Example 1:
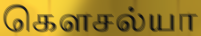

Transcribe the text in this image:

கௌசல்யா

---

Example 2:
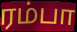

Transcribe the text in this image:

ரம்பா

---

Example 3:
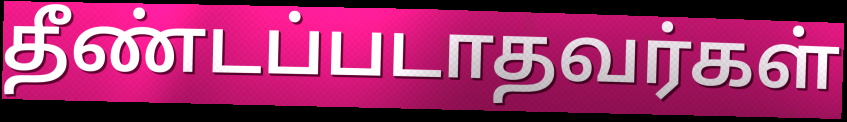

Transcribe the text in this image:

தீண்டப்படாதவர்கள்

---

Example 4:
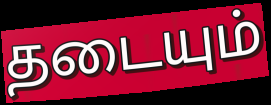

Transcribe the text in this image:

தடையும்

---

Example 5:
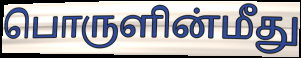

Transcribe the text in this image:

பொருளின்மீது